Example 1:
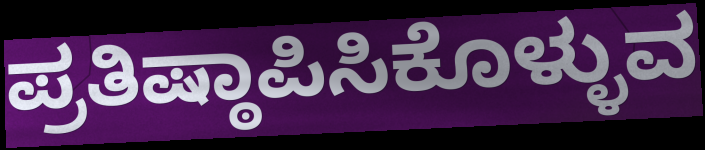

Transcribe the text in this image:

ಪ್ರತಿಷ್ಠಾಪಿಸಿಕೊಳ್ಳುವ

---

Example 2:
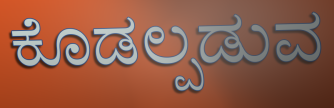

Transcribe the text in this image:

ಕೊಡಲ್ಪಡುವ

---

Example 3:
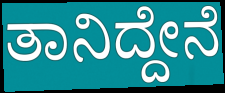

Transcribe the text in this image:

ತಾನಿದ್ದೇನೆ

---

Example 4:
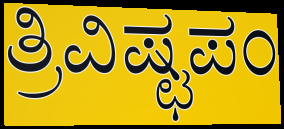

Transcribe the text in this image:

ತ್ರಿವಿಷ್ಟಪಂ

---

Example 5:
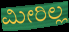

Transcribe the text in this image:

ಮೀರಿಲ್ಲ